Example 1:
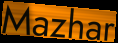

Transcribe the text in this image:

Mazhar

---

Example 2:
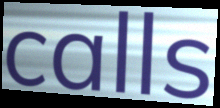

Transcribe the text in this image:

calls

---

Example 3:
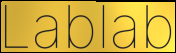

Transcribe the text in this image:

Lablab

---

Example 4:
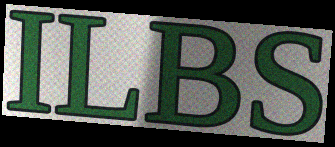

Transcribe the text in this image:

ILBS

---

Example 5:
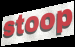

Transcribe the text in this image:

stoop